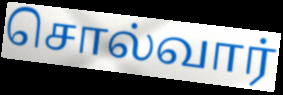
சொல்வார்